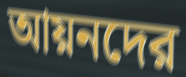
আয়নদের